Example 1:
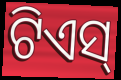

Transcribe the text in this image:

ଟିଏସ୍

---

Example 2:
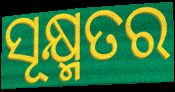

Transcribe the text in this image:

ସୂକ୍ଷ୍ମତର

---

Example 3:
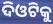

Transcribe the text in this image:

ଦିଓଟିକୁ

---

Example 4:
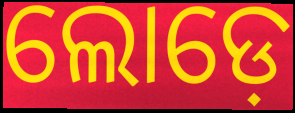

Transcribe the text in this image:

ଲୋଡ଼େ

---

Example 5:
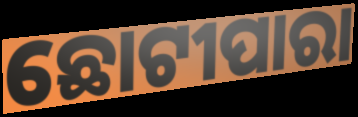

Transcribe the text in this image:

ଛୋଟୀପାରା